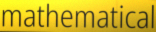
mathematical